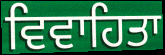
ਵਿਵਾਹਿਤਾ